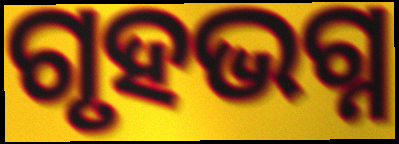
ଗୃହଭଗ୍ନ